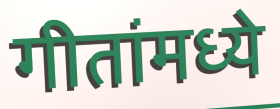
गीतांमध्ये